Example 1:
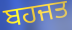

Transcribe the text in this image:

ਬਹਜਤ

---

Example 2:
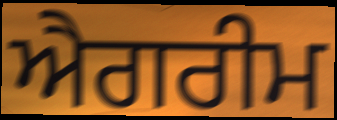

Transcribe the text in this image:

ਐਗਰੀਮ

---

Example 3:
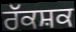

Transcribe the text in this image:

ਰੱਕਸ਼ਕ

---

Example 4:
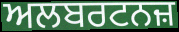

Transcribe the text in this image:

ਅਲਬਰਟਨਜ਼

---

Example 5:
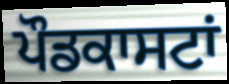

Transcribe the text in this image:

ਪੌਡਕਾਸਟਾਂ